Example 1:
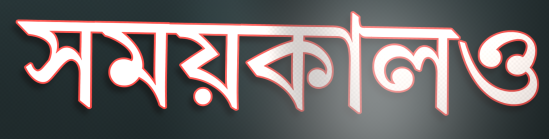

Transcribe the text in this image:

সময়কালও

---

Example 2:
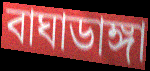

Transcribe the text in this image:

বাঘাডাঙ্গা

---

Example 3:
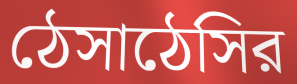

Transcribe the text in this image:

ঠেসাঠেসির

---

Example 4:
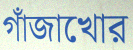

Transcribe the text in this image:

গাঁজাখোর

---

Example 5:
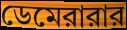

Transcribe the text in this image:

ডেমেরারার